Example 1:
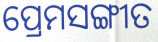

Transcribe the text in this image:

ପ୍ରେମସଙ୍ଗୀତ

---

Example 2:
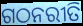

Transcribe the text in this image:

ଗଠନରୀତି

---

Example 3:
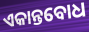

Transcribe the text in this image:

ଏକାନ୍ତବୋଧ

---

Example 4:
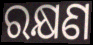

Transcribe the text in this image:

ରକ୍ଷଣ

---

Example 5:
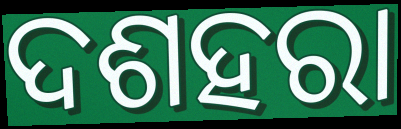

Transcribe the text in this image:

ଦଶହରା